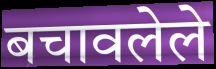
बचावलेले